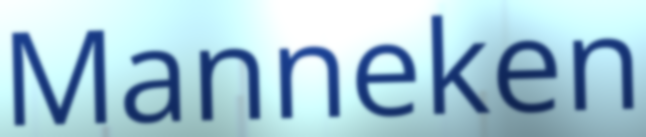
Manneken